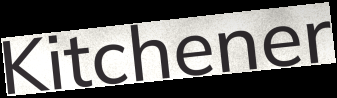
Kitchener